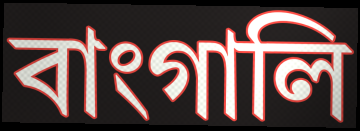
বাংগালি